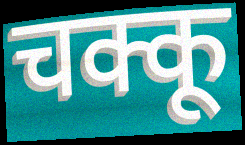
चक्कू